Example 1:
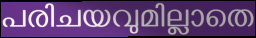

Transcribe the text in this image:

പരിചയവുമില്ലാതെ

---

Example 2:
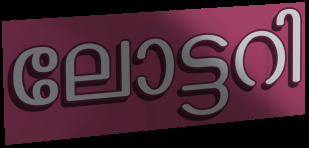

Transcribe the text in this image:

ലോട്ടറി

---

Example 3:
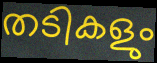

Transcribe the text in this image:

തടികളും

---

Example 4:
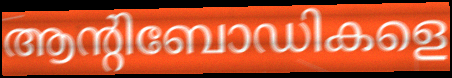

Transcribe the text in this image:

ആന്റിബോഡികളെ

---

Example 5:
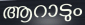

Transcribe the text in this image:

ആറാടും